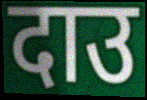
दाउ